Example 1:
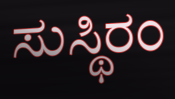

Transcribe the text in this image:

ಸುಸ್ಥಿರಂ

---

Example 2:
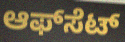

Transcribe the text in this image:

ಆಫ್‍ಸೆಟ್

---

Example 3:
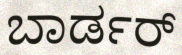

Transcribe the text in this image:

ಬಾರ್ಡರ್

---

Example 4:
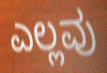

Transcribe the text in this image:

ಎಲ್ಲವು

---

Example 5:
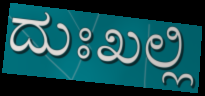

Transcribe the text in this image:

ದುಃಖಲ್ಲಿ